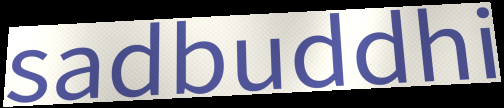
sadbuddhi